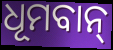
ଧୂମବାନ୍